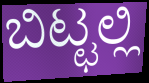
ಬಿಟ್ಟಲ್ಲಿ